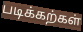
படிக்கற்கள்